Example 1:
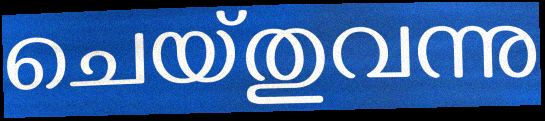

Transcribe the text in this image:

ചെയ്തുവന്നു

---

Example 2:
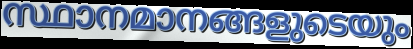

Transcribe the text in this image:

സ്ഥാനമാനങ്ങളുടെയും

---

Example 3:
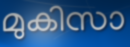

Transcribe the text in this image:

മുകിസാ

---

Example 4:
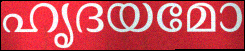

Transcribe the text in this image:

ഹൃദയമോ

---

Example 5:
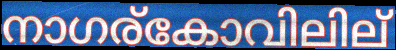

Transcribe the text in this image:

നാഗര്കോവിലില്